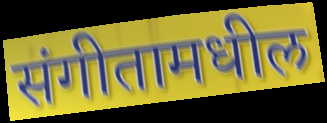
संगीतामधील